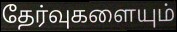
தேர்வுகளையும்